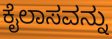
ಕೈಲಾಸವನ್ನು